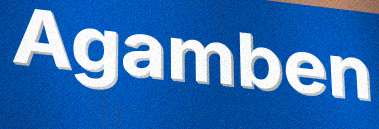
Agamben